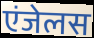
एंजेलस